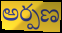
అర్పణ